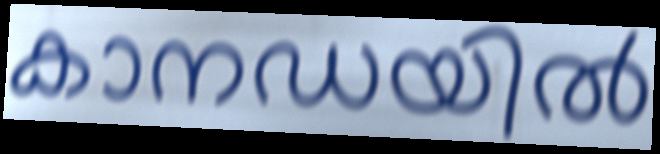
കാനഡയിൽ